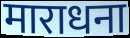
माराधना